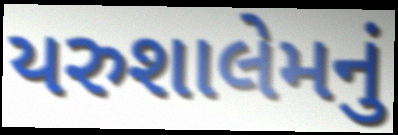
યરુશાલેમનું